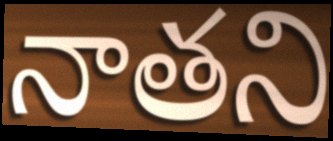
నాతని